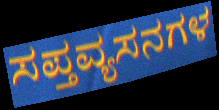
ಸಪ್ತವ್ಯಸನಗಳ